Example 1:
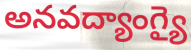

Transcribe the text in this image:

అనవద్యాంగ్యై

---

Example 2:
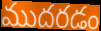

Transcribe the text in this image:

ముదరడం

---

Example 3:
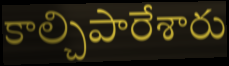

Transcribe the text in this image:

కాల్చిపారేశారు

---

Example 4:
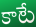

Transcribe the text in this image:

కాటే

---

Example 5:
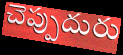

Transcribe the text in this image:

చెప్పుదురు